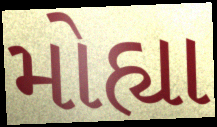
મોહ્યા